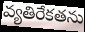
వ్యతిరేకతను